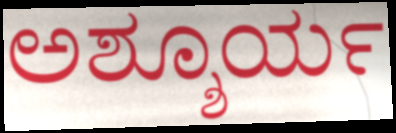
ಅಶ್ಶೂರ್ಯ